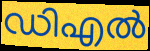
ഡിഎൽ